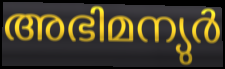
അഭിമന്യുർ